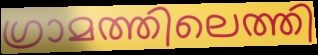
ഗ്രാമത്തിലെത്തി